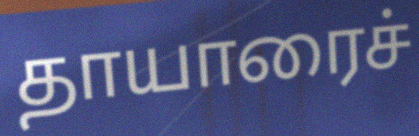
தாயாரைச்